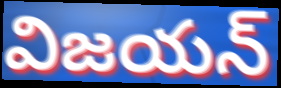
విజయన్